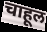
चाहूल